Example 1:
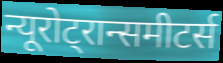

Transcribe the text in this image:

न्यूरोट्रान्समीटर्स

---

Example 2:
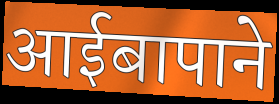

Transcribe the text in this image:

आईबापाने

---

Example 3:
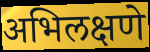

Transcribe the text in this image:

अभिलक्षणे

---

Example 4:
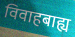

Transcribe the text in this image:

विवाहबाह्य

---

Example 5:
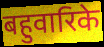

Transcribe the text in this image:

बहुवारिके